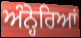
ਅੰਨ੍ਹੇਰਿਆਂ